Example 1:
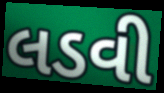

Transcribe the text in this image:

લડવી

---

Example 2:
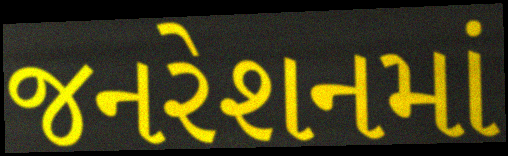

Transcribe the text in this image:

જનરેશનમાં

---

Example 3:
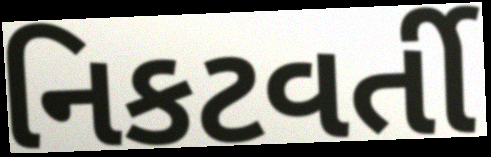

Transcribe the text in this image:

નિકટવર્તી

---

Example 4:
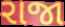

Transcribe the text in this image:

રાજા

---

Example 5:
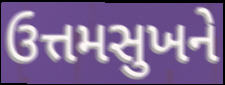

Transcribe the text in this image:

ઉત્તમસુખને